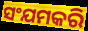
ସଂଯମକରି